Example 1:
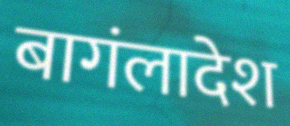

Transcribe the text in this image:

बागंलादेश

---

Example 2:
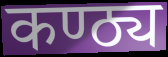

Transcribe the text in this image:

कण्ठ्य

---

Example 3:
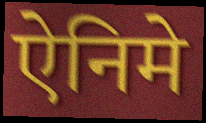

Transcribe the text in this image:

ऐनिमे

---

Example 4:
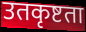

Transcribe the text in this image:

उतकृष्टता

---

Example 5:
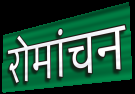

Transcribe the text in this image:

रोमांचन